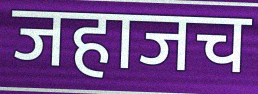
जहाजच